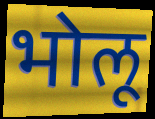
भोलू